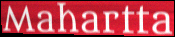
Mahartta